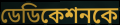
ডেডিকেশনকে